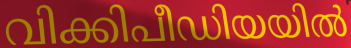
വിക്കിപീഡിയയിൽ